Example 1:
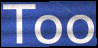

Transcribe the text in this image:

Too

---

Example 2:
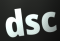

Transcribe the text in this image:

dsc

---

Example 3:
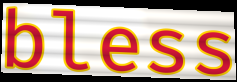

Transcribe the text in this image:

bless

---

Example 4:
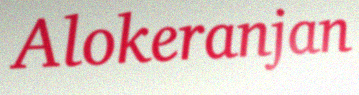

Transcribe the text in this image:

Alokeranjan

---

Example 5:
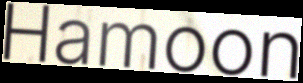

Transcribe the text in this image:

Hamoon